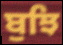
ਬੁਝਿ